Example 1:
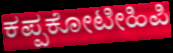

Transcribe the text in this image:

ಕಪ್ಪಕೋಟೀಹಿಪಿ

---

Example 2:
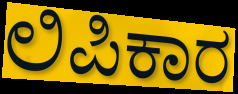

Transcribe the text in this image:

ಲಿಪಿಕಾರ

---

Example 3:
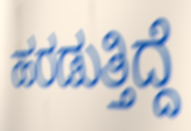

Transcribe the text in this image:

ಹರಡುತ್ತಿದ್ದೆ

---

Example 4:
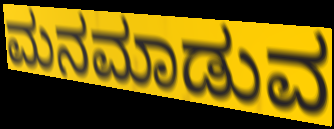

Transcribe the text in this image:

ಮನಮಾಡುವ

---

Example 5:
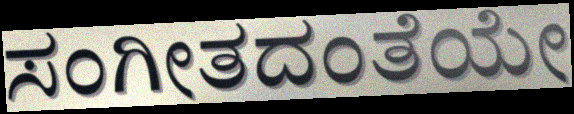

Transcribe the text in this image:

ಸಂಗೀತದಂತೆಯೇ